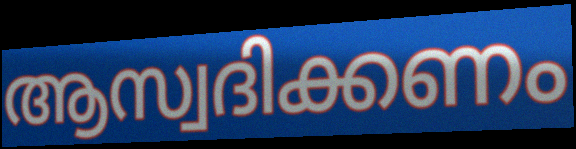
ആസ്വദിക്കണം